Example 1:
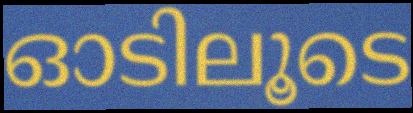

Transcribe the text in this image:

ഓടിലൂടെ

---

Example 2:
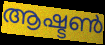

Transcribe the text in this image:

ആഷ്ടൺ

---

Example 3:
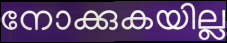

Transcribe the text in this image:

നോക്കുകയില്ല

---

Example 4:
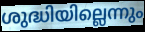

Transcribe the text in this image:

ശുദ്ധിയില്ലെന്നും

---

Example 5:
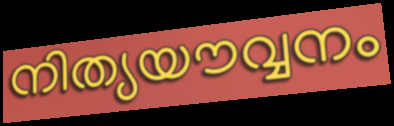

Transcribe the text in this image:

നിത്യയൗവ്വനം